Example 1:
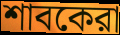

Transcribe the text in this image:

শাবকেরা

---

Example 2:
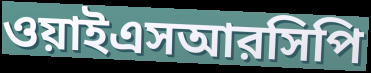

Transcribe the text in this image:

ওয়াইএসআরসিপি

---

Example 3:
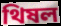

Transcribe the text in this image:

থিষল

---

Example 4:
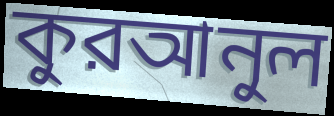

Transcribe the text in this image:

কুরআনুল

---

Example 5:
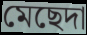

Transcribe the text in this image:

মেছেদা